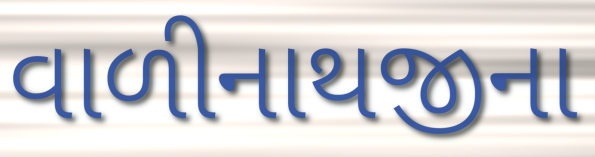
વાળીનાથજીના